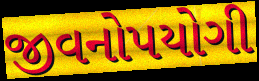
જીવનોપયોગી